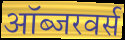
ऑब्जरवर्स